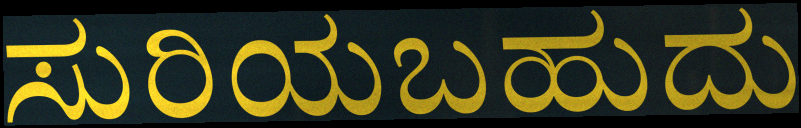
ಸುರಿಯಬಹುದು